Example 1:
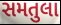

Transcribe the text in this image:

સમતુલા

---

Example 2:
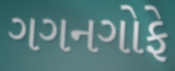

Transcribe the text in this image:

ગગનગોફે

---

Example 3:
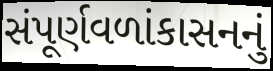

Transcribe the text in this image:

સંપૂર્ણવળાંકાસનનું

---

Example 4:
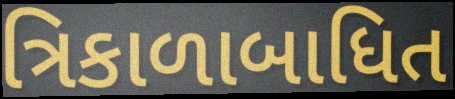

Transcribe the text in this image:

ત્રિકાળાબાધિત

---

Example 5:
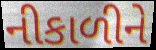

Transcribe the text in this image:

નીકાળીને